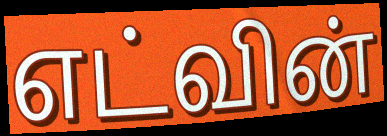
எட்வின்